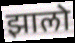
झालो